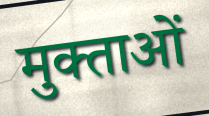
मुक्ताओं